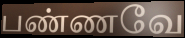
பண்ணவே